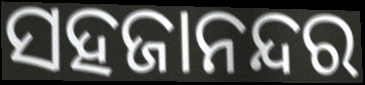
ସହଜାନନ୍ଦର